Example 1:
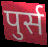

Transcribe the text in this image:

पुर्स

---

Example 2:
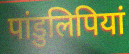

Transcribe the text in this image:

पांडुलिपियां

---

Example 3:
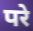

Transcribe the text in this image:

परे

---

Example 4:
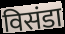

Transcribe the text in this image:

विसंडा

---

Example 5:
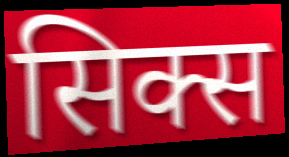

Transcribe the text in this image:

सिक्स